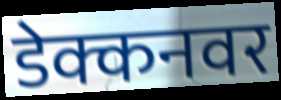
डेक्कनवर